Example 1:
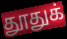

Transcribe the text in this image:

தூதுக்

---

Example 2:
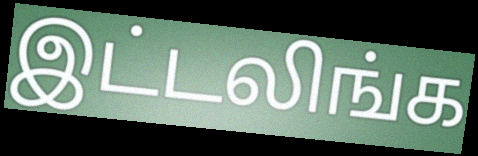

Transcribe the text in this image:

இட்டலிங்க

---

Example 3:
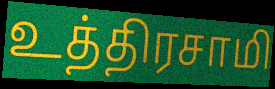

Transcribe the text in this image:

உத்திரசாமி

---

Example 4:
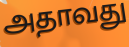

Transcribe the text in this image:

அதாவது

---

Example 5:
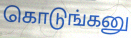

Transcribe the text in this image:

கொடுங்கனு